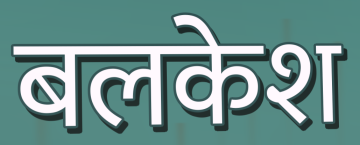
बलकेश